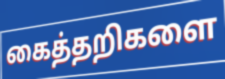
கைத்தறிகளை